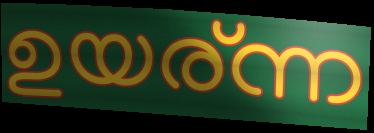
ഉയര്ന്ന